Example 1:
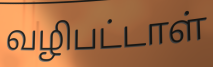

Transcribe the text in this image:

வழிபட்டாள்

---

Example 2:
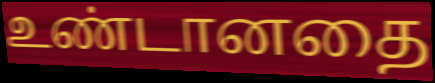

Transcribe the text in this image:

உண்டானதை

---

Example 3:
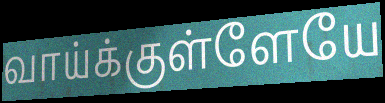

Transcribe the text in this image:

வாய்க்குள்ளேயே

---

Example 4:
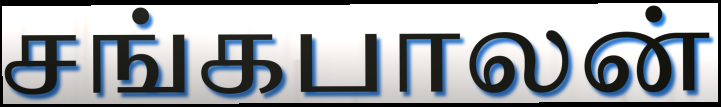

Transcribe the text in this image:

சங்கபாலன்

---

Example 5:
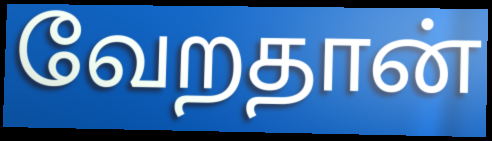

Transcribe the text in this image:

வேறதான்